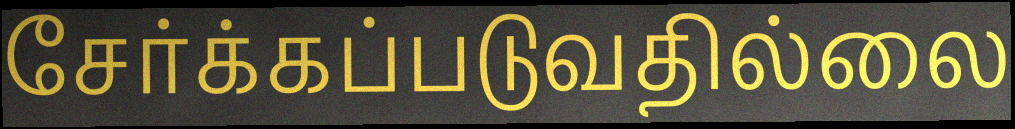
சேர்க்கப்படுவதில்லை